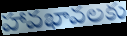
హావభావలకు